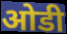
ओडी